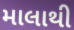
માલાથી